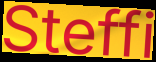
Steffi